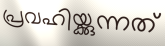
പ്രവഹിയ്ക്കുന്നത്